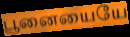
பூனையையே